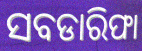
ସବଡାରିଫା